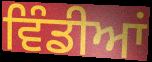
ਵਿੰਡੀਆਂ